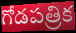
గోడపత్రిక